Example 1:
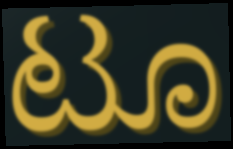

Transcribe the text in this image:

ಟೂ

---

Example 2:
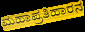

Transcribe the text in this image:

ಮಹಾಪ್ರತಿಹಾರನ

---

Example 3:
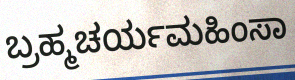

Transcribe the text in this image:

ಬ್ರಹ್ಮಚರ್ಯಮಹಿಂಸಾ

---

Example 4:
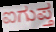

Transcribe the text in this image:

ಐಗುಪ್ತ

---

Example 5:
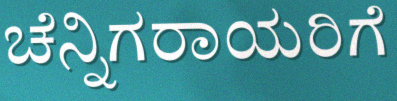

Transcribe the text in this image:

ಚೆನ್ನಿಗರಾಯರಿಗೆ